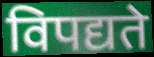
विपद्यते